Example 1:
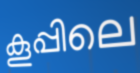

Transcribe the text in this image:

കൂപ്പിലെ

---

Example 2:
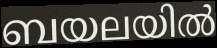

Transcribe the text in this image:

ബയലയിൽ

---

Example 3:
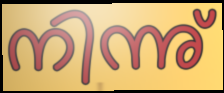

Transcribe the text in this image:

നിന്നു്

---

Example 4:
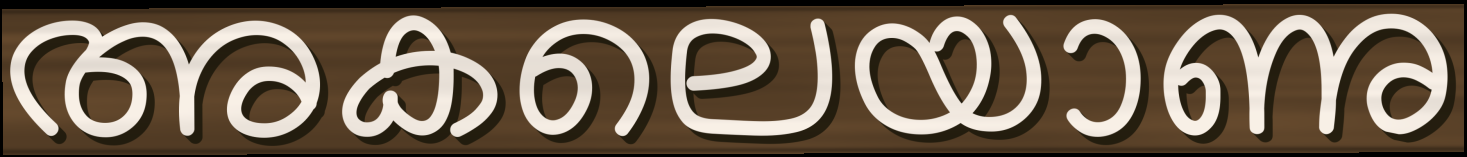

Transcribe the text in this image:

അകലെയാണു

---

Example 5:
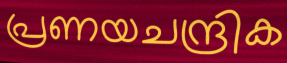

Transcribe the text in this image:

പ്രണയചന്ദ്രിക